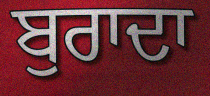
ਬੁਰਾਦਾ